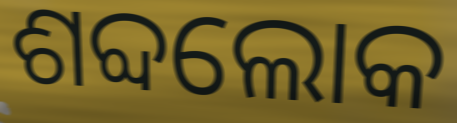
ଶବ୍ଦଲୋକ